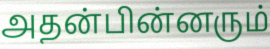
அதன்பின்னரும்